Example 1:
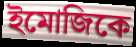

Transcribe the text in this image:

ইমোজিকে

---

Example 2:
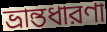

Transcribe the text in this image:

ভ্রান্তধারণা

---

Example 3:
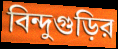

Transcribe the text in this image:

বিন্দুগুড়ির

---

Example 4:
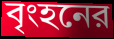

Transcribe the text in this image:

বৃংহনের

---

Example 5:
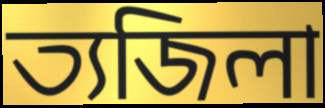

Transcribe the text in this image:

ত্যজিলা